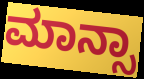
ಮಾನ್ಸಾ